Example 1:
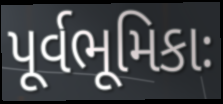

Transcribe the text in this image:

પૂર્વભૂમિકાઃ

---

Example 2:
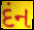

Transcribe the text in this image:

દંન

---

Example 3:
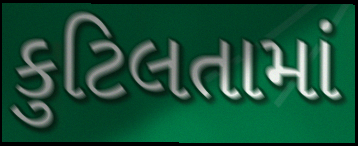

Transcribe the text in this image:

કુટિલતામાં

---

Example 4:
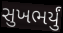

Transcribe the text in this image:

સુખભર્યું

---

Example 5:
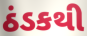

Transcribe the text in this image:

ઠંડકથી